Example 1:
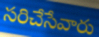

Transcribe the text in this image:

సరిచేసేవారు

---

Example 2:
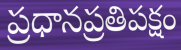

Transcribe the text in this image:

ప్రధానప్రతిపక్షం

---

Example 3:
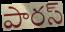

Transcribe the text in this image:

పారస్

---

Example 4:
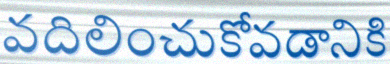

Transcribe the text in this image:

వదిలించుకోవడానికి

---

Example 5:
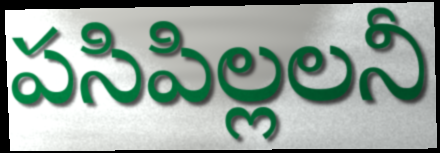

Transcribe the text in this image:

పసిపిల్లలనీ